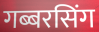
गब्बरसिंग